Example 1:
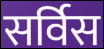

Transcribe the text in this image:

सर्विस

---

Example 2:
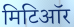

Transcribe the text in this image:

मिटिऑर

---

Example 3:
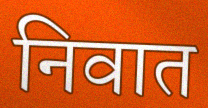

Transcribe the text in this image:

निवात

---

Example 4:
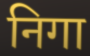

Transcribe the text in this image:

निगा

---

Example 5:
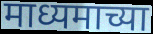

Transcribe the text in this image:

माध्यमाच्या